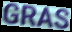
GRAS